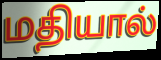
மதியால்